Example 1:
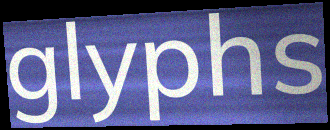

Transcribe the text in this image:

glyphs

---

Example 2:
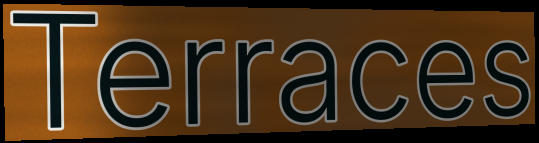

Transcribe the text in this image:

Terraces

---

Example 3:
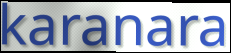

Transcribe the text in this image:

karanara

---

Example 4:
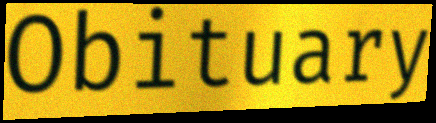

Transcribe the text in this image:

Obituary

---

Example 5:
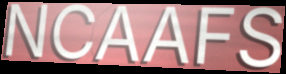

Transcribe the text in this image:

NCAAFS